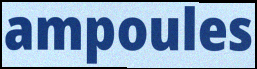
ampoules